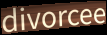
divorcee